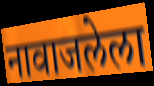
नावाजलेला